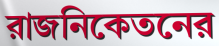
রাজনিকেতনের